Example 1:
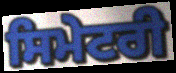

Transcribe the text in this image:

ਸਿਮੇਟਰੀ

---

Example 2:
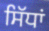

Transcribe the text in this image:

ਸਿੱਧਾਂ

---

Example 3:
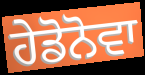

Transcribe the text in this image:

ਹੇਡੋਨੋਵਾ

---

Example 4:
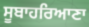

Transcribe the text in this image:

ਸੂਬਾਹਰਿਆਣਾ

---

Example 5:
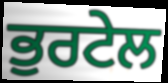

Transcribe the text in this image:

ਭੁਰਟੇਲ